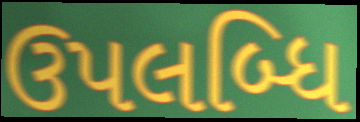
ઉપલબ્ધિ